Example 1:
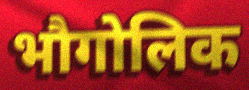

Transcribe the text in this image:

भौगोलिक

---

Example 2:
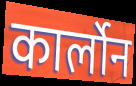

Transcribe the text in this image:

कार्लोन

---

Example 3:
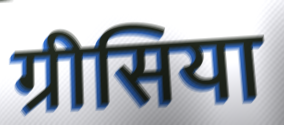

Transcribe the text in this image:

ग्रीसिया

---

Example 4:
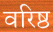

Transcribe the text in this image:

वरिष्ठ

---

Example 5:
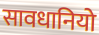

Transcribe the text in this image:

सावधानियो